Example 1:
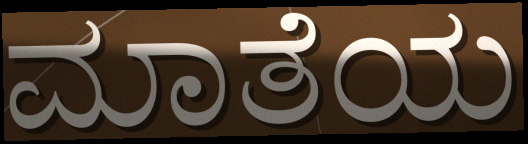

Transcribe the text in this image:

ಮಾತೆಯ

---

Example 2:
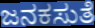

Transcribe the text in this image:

ಜನಕಸುತೆ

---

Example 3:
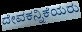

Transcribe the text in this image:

ದೇವಕನ್ನಿಕೆಯರು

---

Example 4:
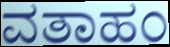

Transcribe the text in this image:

ವತಾಹಂ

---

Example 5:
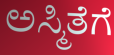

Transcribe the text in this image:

ಅಸ್ಮಿತೆಗೆ